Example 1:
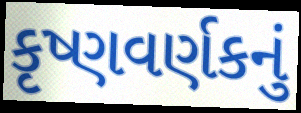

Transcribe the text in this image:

કૃષ્ણવર્ણકનું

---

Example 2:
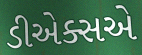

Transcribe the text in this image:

ડીએક્સએ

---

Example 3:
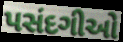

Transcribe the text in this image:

પસંદગીઓ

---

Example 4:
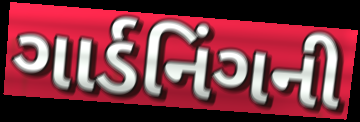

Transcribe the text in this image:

ગાર્ડનિંગની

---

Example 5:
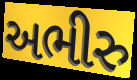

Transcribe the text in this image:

અભીરુ